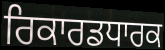
ਰਿਕਾਰਡਧਾਰਕ